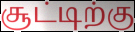
சூட்டிற்கு